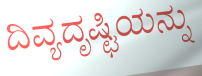
ದಿವ್ಯದೃಷ್ಟಿಯನ್ನು